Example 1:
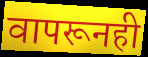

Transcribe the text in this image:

वापरूनही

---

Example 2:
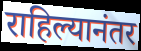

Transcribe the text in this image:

राहिल्यानंतर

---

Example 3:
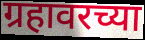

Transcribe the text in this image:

ग्रहावरच्या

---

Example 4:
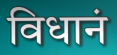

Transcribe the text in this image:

विधानं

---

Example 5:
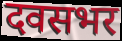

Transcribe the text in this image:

दवसभर